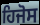
ਹਿਜੋਸ